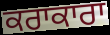
ਕਰਾਕਾਰਾ